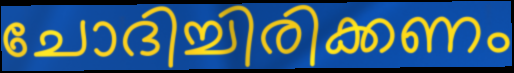
ചോദിച്ചിരിക്കണം